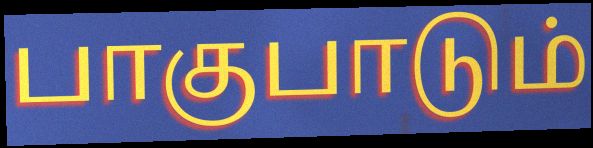
பாகுபாடும்